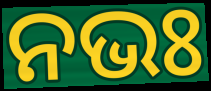
ନଭଃ